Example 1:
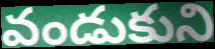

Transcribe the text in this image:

వండుకుని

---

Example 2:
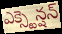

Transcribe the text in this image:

ఎక్స్టెన్షన్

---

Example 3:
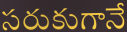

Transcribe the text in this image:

సరుకుగానే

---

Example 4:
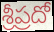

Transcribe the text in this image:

శ్రీప్రదో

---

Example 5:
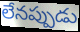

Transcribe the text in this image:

లేనప్పుడు